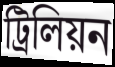
ট্রিলিয়ন